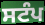
ਸਟੰਪ